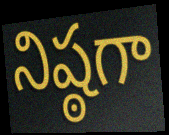
నిష్ఠగా